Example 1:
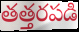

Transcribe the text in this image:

తత్తరపడి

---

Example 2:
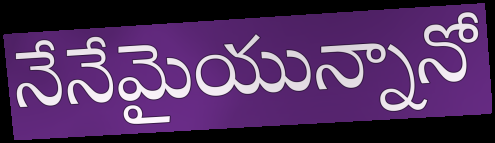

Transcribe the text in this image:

నేనేమైయున్నానో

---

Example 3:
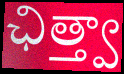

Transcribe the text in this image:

ఛిత్త్వా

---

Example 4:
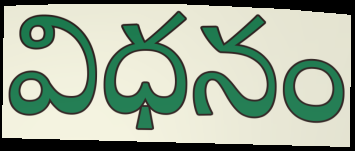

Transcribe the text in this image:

విధనం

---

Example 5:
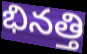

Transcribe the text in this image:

భినత్తి